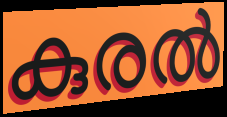
കുരൽ